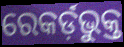
ରେକର୍ଡ଼ଭୁକ୍ତ